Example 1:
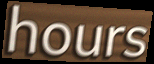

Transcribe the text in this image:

hours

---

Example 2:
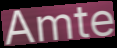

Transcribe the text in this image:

Amte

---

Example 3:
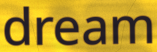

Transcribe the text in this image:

dream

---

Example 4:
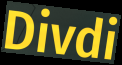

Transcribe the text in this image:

Divdi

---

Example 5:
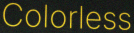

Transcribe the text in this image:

Colorless